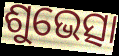
ଶୁଭେତ୍ସା